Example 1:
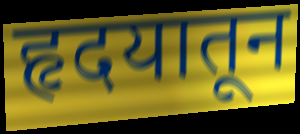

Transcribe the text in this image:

हृदयातून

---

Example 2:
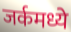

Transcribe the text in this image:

जर्कमध्ये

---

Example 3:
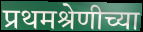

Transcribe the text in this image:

प्रथमश्रेणीच्या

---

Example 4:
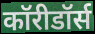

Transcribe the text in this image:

कॉरीडॉर्स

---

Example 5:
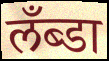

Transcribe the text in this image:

लँब्डा